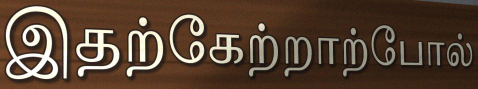
இதற்கேற்றாற்போல்